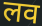
लव